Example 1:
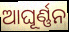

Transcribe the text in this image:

ଆଘୂର୍ଣ୍ଣନ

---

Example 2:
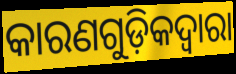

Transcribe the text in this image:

କାରଣଗୁଡ଼ିକଦ୍ବାରା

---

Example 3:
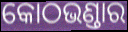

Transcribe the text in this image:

କୋଠଭଣ୍ଡାର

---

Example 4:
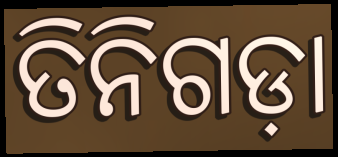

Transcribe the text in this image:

ତିନିଗଡ଼ା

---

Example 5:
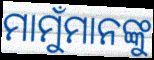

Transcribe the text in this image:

ମାମୁଁମାନଙ୍କୁ